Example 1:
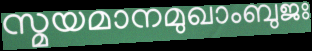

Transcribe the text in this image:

സ്മയമാനമുഖാംബുജഃ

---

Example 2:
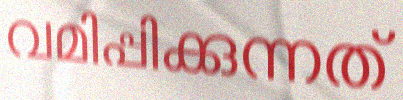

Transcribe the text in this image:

വമിപ്പിക്കുന്നത്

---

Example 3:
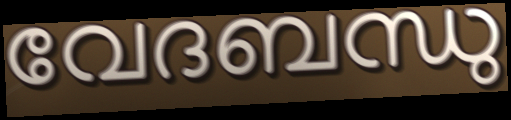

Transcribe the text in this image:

വേദബന്ധു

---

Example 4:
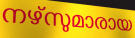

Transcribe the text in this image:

നഴ്സുമാരായ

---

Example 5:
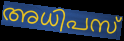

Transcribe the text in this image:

അധിപസ്